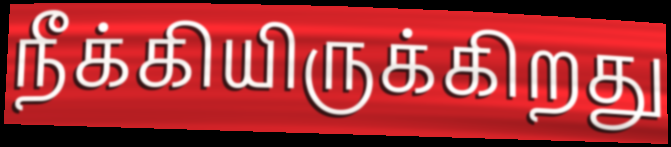
நீக்கியிருக்கிறது